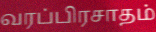
வரப்பிரசாதம்